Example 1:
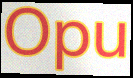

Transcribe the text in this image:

Opu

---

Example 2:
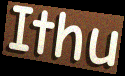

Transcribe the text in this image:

Ithu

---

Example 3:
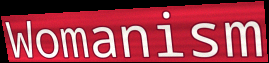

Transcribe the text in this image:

Womanism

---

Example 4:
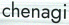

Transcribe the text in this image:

chenagi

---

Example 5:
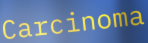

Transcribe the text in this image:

Carcinoma